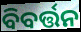
ବିବର୍ତ୍ତନ